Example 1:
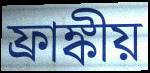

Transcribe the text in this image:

ফ্রাঙ্কীয়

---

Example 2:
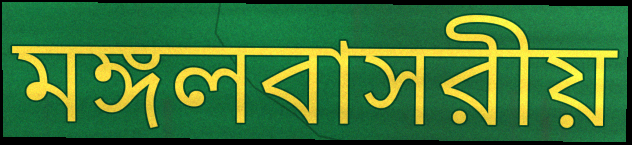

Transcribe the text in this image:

মঙ্গলবাসরীয়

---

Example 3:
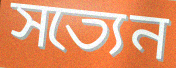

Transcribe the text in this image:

সত্যেন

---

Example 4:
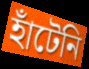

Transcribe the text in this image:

হাঁটেনি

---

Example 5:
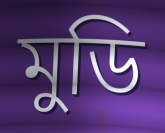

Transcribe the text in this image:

মুডি